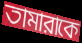
তামারাকে